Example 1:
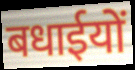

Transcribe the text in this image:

बधाईयों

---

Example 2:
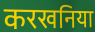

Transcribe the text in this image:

करखनिया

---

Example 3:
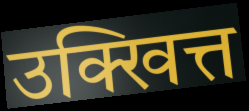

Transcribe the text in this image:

उक्खित्त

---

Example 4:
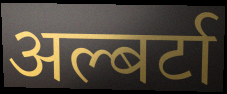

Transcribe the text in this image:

अल्बर्टा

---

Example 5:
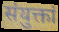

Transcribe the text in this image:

संयुक्तां